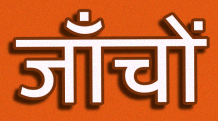
जाँचों